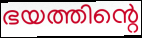
ഭയത്തിന്റെ